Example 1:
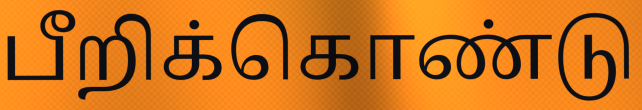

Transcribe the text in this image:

பீறிக்கொண்டு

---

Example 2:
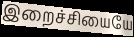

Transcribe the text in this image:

இறைச்சியையே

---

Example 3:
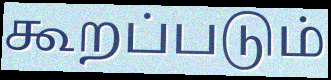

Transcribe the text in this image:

கூறப்படும்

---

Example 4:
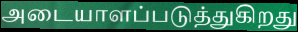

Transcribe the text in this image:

அடையாளப்படுத்துகிறது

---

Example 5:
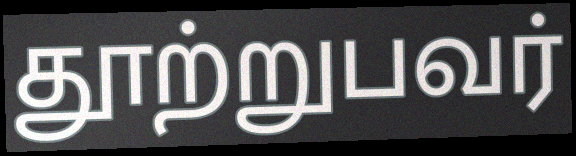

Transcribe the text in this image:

தூற்றுபவர்